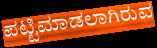
ಪಟ್ಟಿಮಾಡಲಾಗಿರುವ